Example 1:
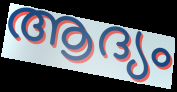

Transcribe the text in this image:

ആദ്യം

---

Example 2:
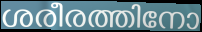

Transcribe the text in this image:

ശരീരത്തിനോ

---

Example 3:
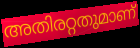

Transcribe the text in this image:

അതിരറ്റതുമാണ്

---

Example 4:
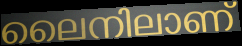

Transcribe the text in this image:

ലൈനിലാണ്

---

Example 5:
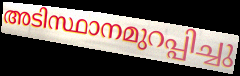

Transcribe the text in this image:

അടിസ്ഥാനമുറപ്പിച്ചു